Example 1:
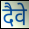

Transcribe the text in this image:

दैवे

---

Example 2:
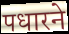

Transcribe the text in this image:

पधारने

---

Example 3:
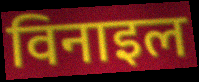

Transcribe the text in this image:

विनाइल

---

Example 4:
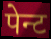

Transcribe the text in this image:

पेन्ट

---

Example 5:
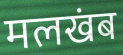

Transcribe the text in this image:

मलखंब